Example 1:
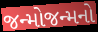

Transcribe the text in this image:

જન્મોજન્મનો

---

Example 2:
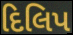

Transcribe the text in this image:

દિલિપ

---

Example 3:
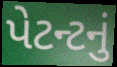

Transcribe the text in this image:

પેટન્ટનું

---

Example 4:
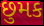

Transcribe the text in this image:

છુમક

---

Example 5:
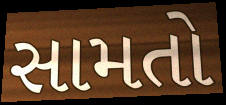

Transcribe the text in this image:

સામતો